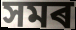
সমৰ